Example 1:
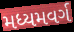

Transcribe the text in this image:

મધ્યમવર્ગ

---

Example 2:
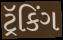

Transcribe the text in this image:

ટ્રૅકિંગ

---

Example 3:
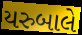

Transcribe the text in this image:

યરુબાલે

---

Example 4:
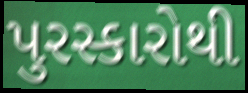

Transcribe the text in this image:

પુરસ્કારોથી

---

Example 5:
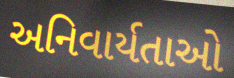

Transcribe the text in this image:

અનિવાર્યતાઓ